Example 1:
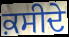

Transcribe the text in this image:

ਕ਼ਸੀਦੇ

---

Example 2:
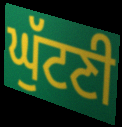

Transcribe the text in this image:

ਘੁੱਟਣੀ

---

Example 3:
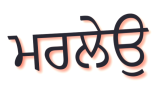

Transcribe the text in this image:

ਮਰਲੇਉ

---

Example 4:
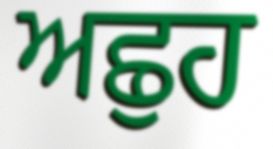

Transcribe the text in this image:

ਅਛੁਹ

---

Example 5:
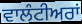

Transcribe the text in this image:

ਵਾਲੰਟੀਅਰਾਂ